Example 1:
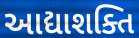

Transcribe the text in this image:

આદ્યાશક્તિ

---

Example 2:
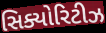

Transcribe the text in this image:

સિક્યોરિટીઝ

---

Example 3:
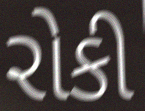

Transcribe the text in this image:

રોકી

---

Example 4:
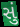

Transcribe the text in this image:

સું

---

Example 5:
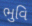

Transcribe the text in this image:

ભુવિ